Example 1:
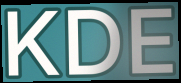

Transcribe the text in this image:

KDE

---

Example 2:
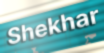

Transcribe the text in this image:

Shekhar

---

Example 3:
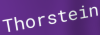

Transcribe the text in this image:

Thorstein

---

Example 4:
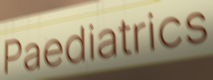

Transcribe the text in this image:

Paediatrics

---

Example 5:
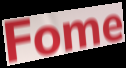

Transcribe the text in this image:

Fome